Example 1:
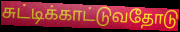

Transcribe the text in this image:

சுட்டிக்காட்டுவதோடு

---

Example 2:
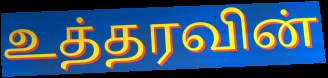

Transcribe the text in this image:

உத்தரவின்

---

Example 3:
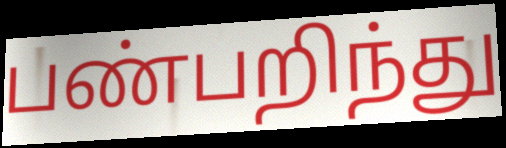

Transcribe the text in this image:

பண்பறிந்து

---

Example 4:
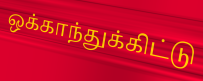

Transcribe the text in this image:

ஒக்காந்துக்கிட்டு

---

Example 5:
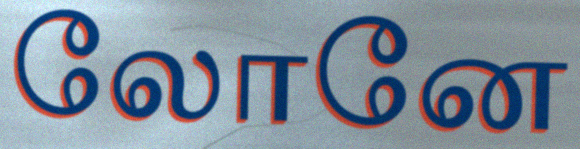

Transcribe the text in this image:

லோனே